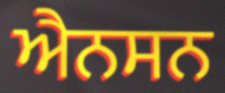
ਐਨਸਨ